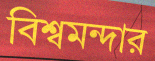
বিশ্বমন্দার